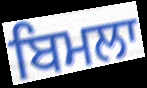
ਬਿਮਲਾ